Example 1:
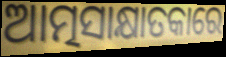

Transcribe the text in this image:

ଆତ୍ମସାକ୍ଷାତକାରେ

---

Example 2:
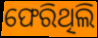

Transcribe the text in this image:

ଫେରିଥିଲି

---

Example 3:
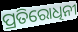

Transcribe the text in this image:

ପ୍ରତିରୋଧିନୀ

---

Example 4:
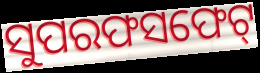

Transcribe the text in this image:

ସୁପରଫସଫେଟ୍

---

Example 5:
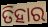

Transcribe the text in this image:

ତିହାର